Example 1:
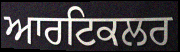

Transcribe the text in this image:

ਆਰਟਿਕਲਰ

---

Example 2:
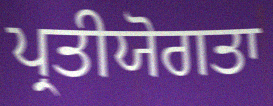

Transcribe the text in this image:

ਪ੍ਰਤੀਯੋਗਤਾ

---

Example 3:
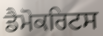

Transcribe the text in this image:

ਡੈਮੋਕਰਿਟਸ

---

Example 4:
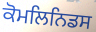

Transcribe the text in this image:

ਕੋਮਲਿਨਿਡਸ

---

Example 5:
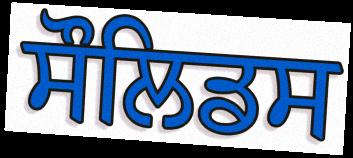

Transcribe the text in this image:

ਸੌਲਿਡਸ